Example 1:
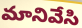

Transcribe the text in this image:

మానివేసి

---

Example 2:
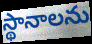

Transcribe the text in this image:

స్థానాలను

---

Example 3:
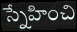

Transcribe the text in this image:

స్నేహించి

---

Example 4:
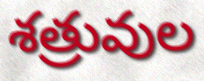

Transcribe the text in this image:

శత్రువుల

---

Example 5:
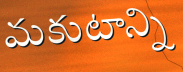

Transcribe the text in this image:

మకుటాన్ని